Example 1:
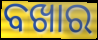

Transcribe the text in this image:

ବଖାର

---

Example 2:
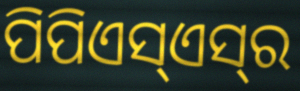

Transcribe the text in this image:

ପିପିଏସ୍ଏସ୍‌ର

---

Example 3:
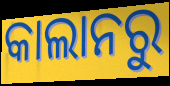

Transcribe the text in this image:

କାଲାନରୁ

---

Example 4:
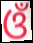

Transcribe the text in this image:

ଓଁ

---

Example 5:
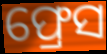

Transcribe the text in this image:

ଫ୍ରେସ